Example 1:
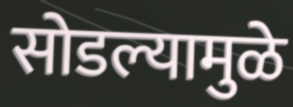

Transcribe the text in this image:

सोडल्यामुळे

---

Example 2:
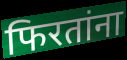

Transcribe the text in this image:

फिरतांना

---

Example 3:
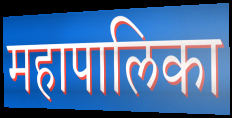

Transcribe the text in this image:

महापालिका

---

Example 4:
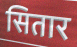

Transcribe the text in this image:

सितार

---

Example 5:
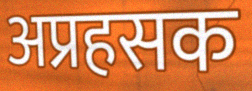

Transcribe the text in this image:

अप्रहसक